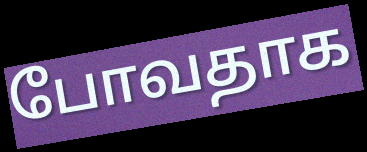
போவதாக